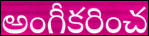
అంగీకరించ